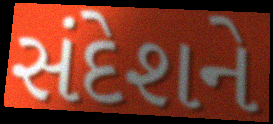
સંદેશને